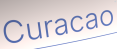
Curacao